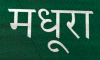
मधूरा